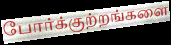
போர்க்குற்றங்களை